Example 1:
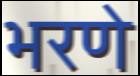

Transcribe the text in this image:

भरणे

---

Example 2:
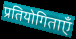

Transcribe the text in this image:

प्रतियोगिताएँ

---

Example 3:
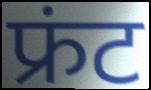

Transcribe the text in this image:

फ्रंट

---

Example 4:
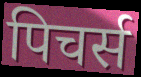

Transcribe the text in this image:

पिचर्स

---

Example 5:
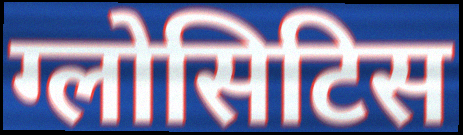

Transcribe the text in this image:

ग्लोसिटिस